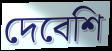
দেবেশি